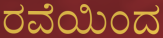
ರವೆಯಿಂದ